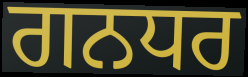
ਗਨਧਰ